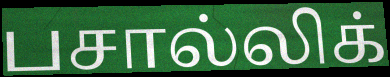
பசால்லிக்